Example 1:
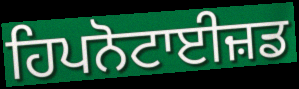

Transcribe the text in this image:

ਹਿਪਨੋਟਾਈਜ਼ਡ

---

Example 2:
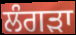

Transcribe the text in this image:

ਲੰਗੜਾ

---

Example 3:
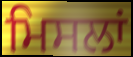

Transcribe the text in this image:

ਮਿਸਲਾਂ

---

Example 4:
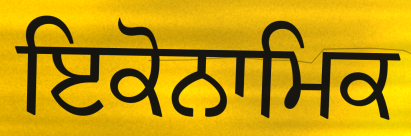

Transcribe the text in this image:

ਇਕੋਨਾਮਿਕ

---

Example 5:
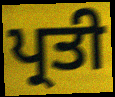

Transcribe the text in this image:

ਪ੍ਰਤੀ